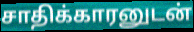
சாதிக்காரனுடன்